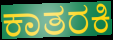
ಕಾತರಕಿ